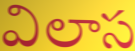
విలాస